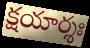
క్షయార్శః